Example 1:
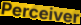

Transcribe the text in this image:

Perceiver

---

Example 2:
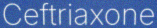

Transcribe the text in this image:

Ceftriaxone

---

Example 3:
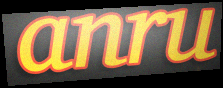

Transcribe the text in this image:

anru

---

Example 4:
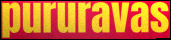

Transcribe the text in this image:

pururavas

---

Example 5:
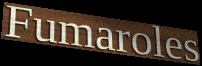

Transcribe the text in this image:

Fumaroles